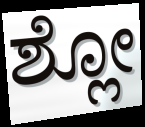
ಶ್ಲೋ